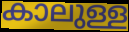
കാലുള്ള